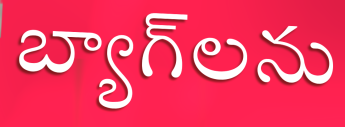
బ్యాగ్‌లను